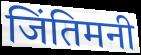
जिंतिमनी